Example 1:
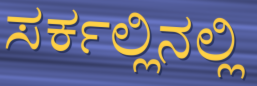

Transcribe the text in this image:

ಸರ್ಕಲ್ಲಿನಲ್ಲಿ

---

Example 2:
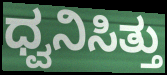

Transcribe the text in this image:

ಧ್ವನಿಸಿತ್ತು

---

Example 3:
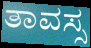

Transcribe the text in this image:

ತಾವಸ್ಸ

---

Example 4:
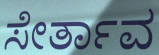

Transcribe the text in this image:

ಸೇರ್ತಾವ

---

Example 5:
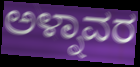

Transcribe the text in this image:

ಅಳ್ನಾವರ